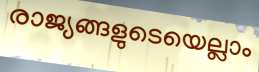
രാജ്യങ്ങളുടെയെല്ലാം